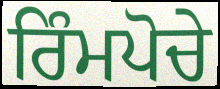
ਰਿੰਮਪੋਚੇ